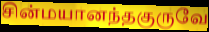
சின்மயானந்தகுருவே